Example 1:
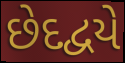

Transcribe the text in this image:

છેદદ્વયે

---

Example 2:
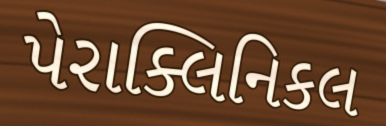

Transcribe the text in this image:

પેરાક્લિનિકલ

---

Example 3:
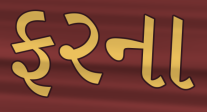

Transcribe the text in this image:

ફરના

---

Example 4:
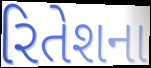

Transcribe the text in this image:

રિતેશના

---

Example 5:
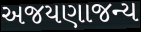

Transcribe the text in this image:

અજયણાજન્ય